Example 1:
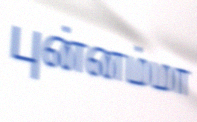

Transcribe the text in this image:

புன்னம்மா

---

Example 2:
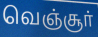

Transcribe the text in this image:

வெஞ்சூர்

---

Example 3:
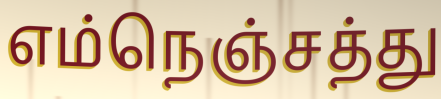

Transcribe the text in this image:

எம்நெஞ்சத்து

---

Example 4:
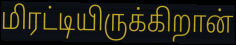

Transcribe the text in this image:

மிரட்டியிருக்கிறான்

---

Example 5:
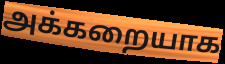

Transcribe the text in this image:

அக்கறையாக